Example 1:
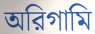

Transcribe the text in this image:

অরিগামি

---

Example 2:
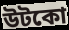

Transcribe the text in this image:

উটকো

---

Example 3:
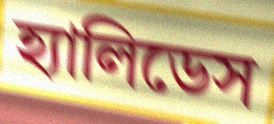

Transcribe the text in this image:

হ্যালিডেস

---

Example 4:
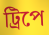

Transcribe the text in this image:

ট্রিপে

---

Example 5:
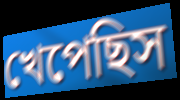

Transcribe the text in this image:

খেপেছিস